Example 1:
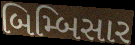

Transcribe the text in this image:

બિમ્બિસાર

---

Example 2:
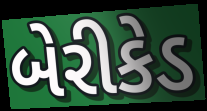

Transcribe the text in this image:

બેરીકેડ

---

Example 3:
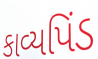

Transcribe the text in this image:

કાવ્યપિંડ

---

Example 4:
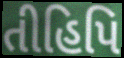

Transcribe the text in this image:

તીહિપિ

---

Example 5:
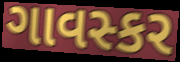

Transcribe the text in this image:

ગાવસ્કર